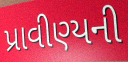
પ્રાવીણ્યની